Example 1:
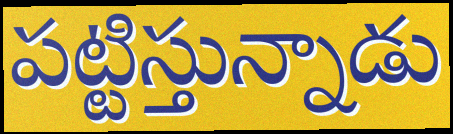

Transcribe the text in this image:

పట్టిస్తున్నాడు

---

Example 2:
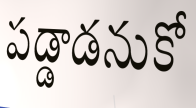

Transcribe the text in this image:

పడ్డాడనుకో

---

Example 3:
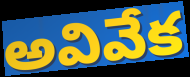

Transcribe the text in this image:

అవివేక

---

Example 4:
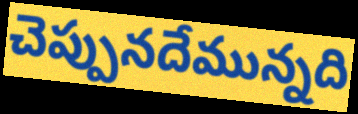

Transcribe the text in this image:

చెప్పునదేమున్నది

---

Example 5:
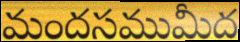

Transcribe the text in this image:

మందసముమీద